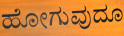
ಹೋಗುವುದೂ